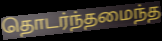
தொடர்ந்தமைந்த